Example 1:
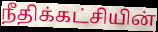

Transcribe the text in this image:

நீதிக்கட்சியின்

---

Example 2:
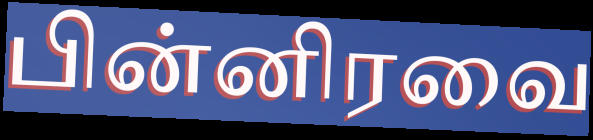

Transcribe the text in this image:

பின்னிரவை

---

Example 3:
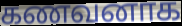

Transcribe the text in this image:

கணவனாக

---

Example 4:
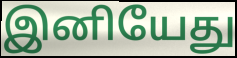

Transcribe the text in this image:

இனியேது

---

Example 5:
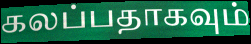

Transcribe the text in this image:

கலப்பதாகவும்